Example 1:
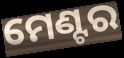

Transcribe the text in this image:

ମେଣ୍ଟର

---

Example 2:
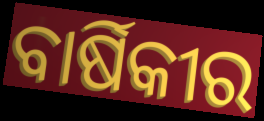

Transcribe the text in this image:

ବାର୍ଷିକୀର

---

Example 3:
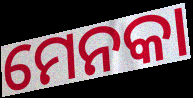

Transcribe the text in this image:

ମେନକା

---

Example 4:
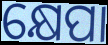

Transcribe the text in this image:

କ୍ଷେପା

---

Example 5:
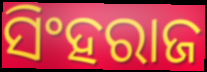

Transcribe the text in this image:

ସିଂହରାଜ